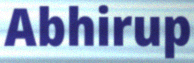
Abhirup